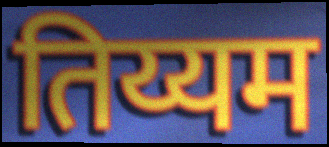
तिय्यम